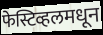
फेस्टिव्हलमधून